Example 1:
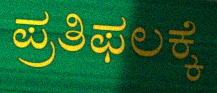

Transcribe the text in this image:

ಪ್ರತಿಫಲಕ್ಕೆ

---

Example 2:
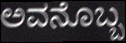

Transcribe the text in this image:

ಅವನೊಬ್ಬ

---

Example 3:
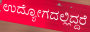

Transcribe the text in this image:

ಉದ್ಯೋಗದಲ್ಲಿದ್ದರೆ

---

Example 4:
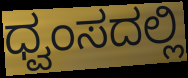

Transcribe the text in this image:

ಧ್ವಂಸದಲ್ಲಿ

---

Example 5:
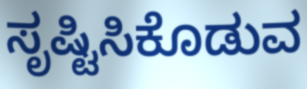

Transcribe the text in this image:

ಸೃಷ್ಟಿಸಿಕೊಡುವ